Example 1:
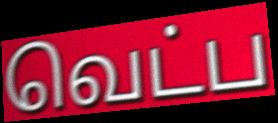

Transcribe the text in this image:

வெட்ப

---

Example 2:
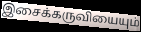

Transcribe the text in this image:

இசைக்கருவியையும்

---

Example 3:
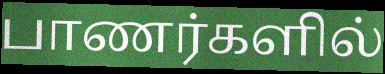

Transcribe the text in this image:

பாணர்களில்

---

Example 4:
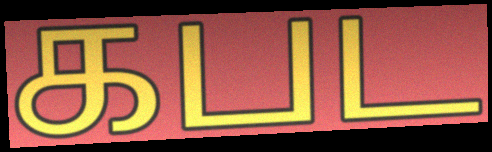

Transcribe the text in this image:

கபட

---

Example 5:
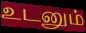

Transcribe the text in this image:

உடனும்